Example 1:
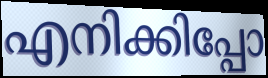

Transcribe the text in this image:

എനിക്കിപ്പോ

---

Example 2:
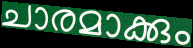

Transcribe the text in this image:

ചാരമാക്കും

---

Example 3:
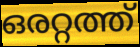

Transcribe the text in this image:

ഒരറ്റത്ത്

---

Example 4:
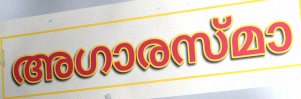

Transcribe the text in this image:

അഗാരസ്മാ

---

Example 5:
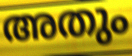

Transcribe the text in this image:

അതും